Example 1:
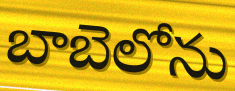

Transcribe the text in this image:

బాబెలోను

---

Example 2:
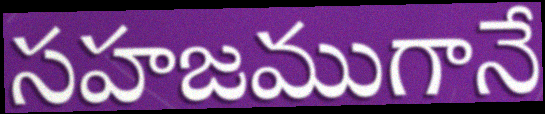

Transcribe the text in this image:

సహజముగానే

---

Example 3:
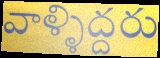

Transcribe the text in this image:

వాళ్ళిద్దరు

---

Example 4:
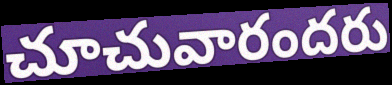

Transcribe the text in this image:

చూచువారందరు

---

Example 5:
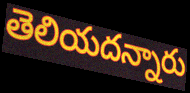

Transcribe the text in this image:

తెలియదన్నారు